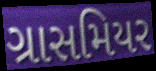
ગ્રાસમિયર